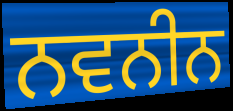
ਨਵਨੀਨ